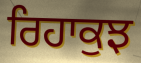
ਰਿਹਾਕੁਝ